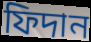
ফিদান